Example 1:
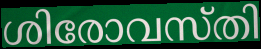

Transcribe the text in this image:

ശിരോവസ്തി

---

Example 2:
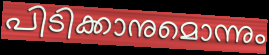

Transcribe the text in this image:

പിടിക്കാനുമൊന്നും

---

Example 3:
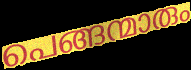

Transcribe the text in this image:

പെങ്ങന്മാരും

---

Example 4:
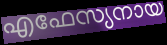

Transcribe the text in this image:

എഫേസ്യനായ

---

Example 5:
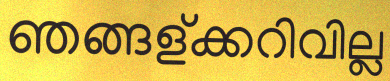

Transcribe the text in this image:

ഞങ്ങള്ക്കറിവില്ല